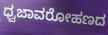
ಧ್ವಜಾವರೋಹಣದ